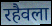
रहैवला